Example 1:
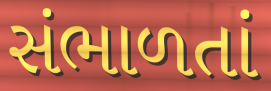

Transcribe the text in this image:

સંભાળતાં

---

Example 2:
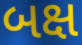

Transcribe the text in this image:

બક્ષ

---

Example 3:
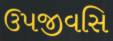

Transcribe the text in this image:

ઉપજીવસિ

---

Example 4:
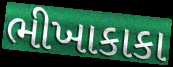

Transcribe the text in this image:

ભીખાકાકા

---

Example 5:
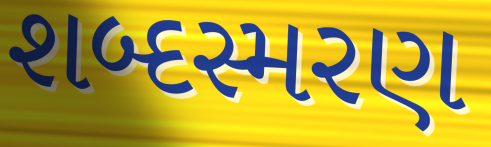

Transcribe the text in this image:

શબ્દસ્મરણ